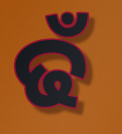
ଢଁ